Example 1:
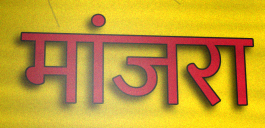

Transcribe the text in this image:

मांजरा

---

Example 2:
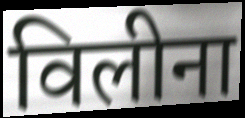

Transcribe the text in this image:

विलीना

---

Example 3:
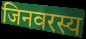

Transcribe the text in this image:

जिनवरस्य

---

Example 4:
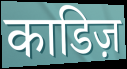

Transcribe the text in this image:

काडिज़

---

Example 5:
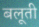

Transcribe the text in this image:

बलूती